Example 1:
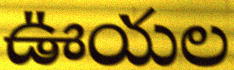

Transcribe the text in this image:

ఊయల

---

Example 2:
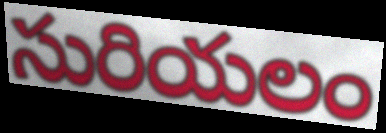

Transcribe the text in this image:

సురియలం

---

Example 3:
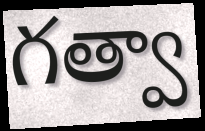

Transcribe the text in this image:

గత్వా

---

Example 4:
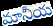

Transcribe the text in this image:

మానీయ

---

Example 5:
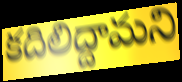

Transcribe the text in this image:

కదిలిద్దామని